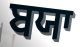
ਬਯਾ